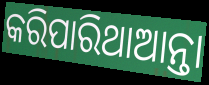
କରିପାରିଥାଆନ୍ତା